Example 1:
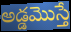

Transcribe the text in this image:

అడ్డమొస్తే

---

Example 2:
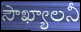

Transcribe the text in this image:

సౌఖ్యాలనీ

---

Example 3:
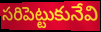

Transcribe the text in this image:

సరిపెట్టుకునేవి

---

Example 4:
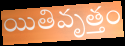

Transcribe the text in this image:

యితివృత్తం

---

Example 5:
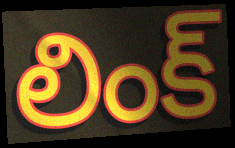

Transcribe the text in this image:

లింక్